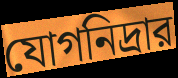
যোগনিদ্রার